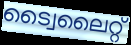
ട്വൈലൈറ്റ്